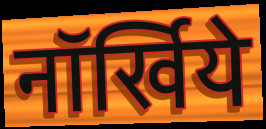
नॉर्खिये